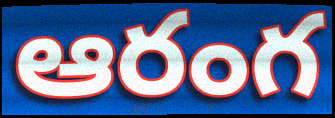
ఆరంగ